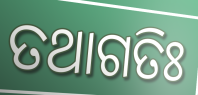
ତଥାଗତିଃ